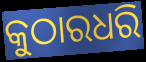
କୁଠାରଧରି